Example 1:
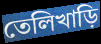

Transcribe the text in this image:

তেলিখাড়ি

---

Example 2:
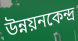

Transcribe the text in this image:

উন্নয়নকেন্দ্র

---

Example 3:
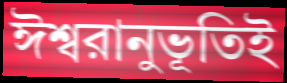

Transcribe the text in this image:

ঈশ্বরানুভূতিই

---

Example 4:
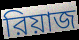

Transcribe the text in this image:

রিয়াজ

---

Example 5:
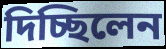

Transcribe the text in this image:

দিচ্ছিলেন